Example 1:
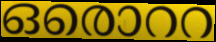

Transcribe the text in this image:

ഒരൊററ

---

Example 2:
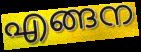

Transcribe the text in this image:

എങ്ങന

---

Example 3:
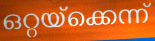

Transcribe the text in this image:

ഒറ്റയ്‌ക്കെന്ന്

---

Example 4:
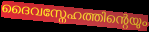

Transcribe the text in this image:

ദൈവസ്നേഹത്തിന്റെയും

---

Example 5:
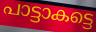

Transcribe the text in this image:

പാട്ടാകട്ടെ